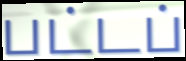
பட்டப்